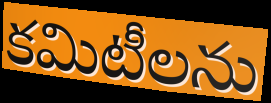
కమిటీలను